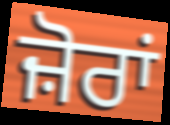
ਜ਼ੋਰਾਂ